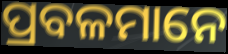
ପ୍ରବଳମାନେ